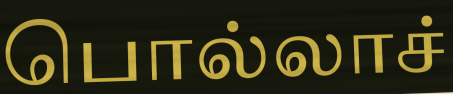
பொல்லாச்